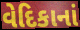
વેદિકાનાં